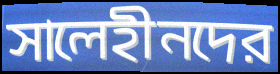
সালেহীনদের